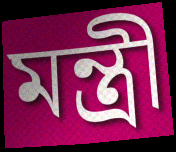
মন্ত্ৰী